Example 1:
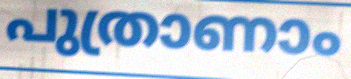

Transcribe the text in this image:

പുത്രാണാം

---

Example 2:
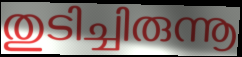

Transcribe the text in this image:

തുടിച്ചിരുന്നൂ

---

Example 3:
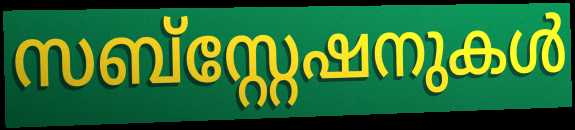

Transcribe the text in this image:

സബ്സ്റ്റേഷനുകൾ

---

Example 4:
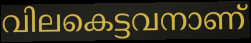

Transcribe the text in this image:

വിലകെട്ടവനാണ്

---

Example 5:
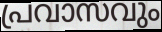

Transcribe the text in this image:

പ്രവാസവും